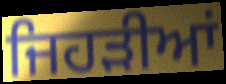
ਜਿਹੜੀਆਂ